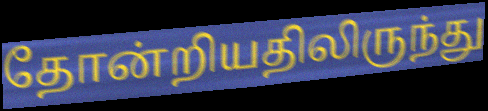
தோன்றியதிலிருந்து